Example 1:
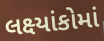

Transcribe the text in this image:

લક્ષ્યાંકોમાં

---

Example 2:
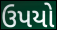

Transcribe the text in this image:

ઉપયો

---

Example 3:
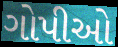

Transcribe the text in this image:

ગોપીઓ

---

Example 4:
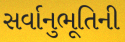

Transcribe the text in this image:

સર્વાનુભૂતિની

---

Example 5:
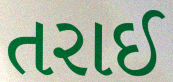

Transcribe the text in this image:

તરાઈ